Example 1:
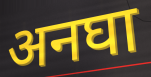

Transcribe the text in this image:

अनघा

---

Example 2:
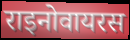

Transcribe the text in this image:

राइनोवायरस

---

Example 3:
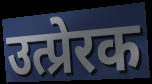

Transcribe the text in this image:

उत्प्रेरक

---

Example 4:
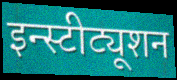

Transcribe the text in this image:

इन्स्टीट्यूशन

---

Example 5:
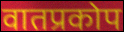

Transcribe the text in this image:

वातप्रकोप